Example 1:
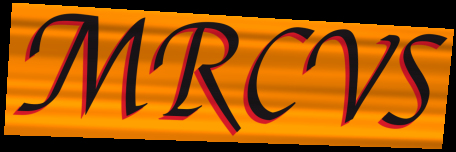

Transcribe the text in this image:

MRCVS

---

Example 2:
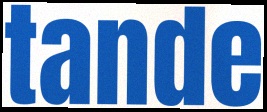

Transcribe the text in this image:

tande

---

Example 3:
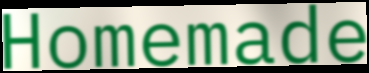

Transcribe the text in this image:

Homemade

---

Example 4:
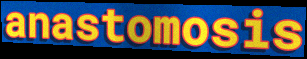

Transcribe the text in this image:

anastomosis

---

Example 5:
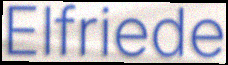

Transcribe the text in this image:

Elfriede